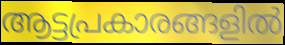
ആട്ടപ്രകാരങ്ങളിൽ